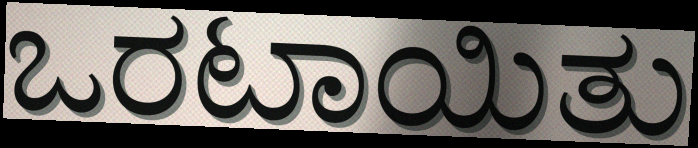
ಒರಟಾಯಿತು